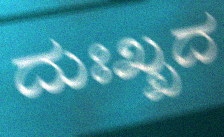
ದುಃಖ್ಖದ